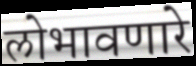
लोभावणारे